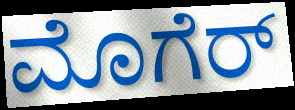
ಮೊಗೆರ್